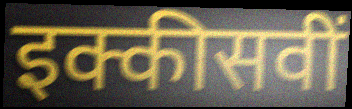
इक्कीसवीं